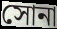
সোনা